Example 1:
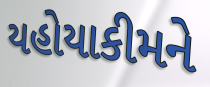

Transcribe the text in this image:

યહોયાકીમને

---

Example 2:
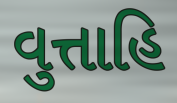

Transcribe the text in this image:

વુત્તાહિ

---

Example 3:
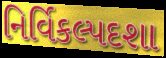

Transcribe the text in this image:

નિર્વિકલ્પદશા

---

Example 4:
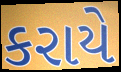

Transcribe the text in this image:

કરાયે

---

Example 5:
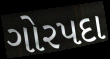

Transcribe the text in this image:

ગોરપદા